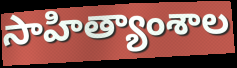
సాహిత్యాంశాల